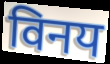
विनय